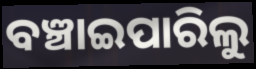
ବଞ୍ଚାଇପାରିଲୁ